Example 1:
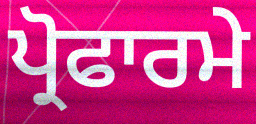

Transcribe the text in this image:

ਪ੍ਰੋਫਾਰਮੇ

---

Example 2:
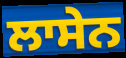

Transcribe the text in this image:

ਲਾਸੇਨ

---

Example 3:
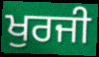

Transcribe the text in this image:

ਖੁਰਜੀ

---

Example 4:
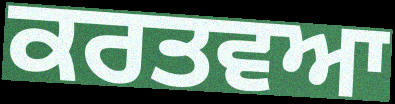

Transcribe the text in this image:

ਕਰਤਵਆ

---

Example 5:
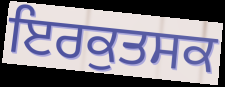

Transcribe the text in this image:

ਇਰਕੁਤਸਕ